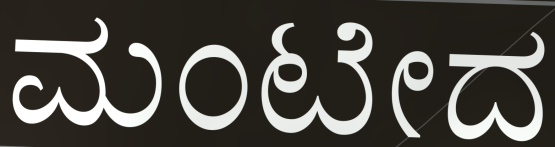
ಮಂಟೇದ